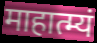
माहात्म्यं